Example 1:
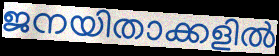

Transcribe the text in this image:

ജനയിതാക്കളിൽ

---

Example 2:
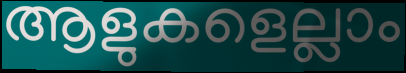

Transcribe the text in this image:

ആളുകളെല്ലാം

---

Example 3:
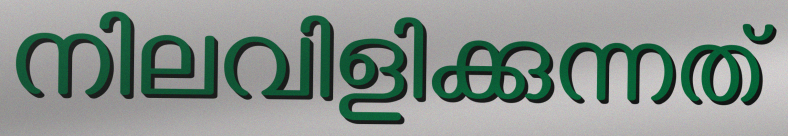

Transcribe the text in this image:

നിലവിളിക്കുന്നത്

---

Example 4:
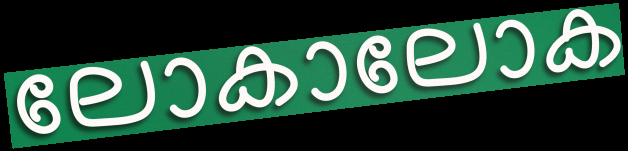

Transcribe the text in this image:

ലോകാലോക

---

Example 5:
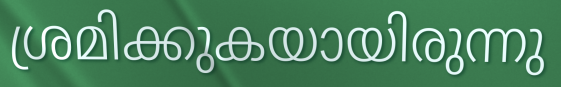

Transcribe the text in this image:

ശ്രമിക്കുകയായിരുന്നു